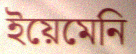
ইয়েমেনি